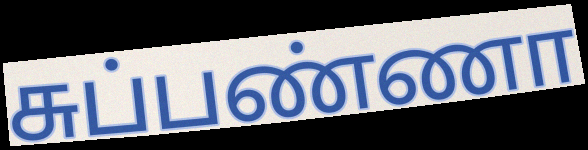
சுப்பண்ணா